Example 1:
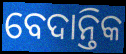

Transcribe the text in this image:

ବେଦାନ୍ତିକ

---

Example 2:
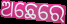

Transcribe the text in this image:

ଅଛେରେ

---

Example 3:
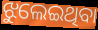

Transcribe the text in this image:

ଝୁଲେଇଥିବା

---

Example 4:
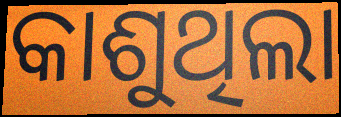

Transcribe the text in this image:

କାଶୁଥିଲା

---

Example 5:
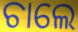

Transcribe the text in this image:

ଚାଲେ